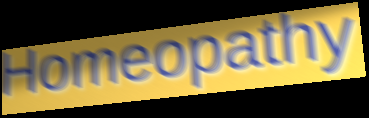
Homeopathy